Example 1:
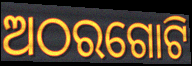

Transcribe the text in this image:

ଅଠରଗୋଟି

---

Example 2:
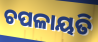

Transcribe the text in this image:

ଚପଳାୟତି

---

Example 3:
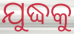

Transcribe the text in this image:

ଯୁଦ୍ଧକୁ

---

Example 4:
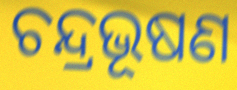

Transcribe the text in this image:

ଚନ୍ଦ୍ରଭୂଷଣ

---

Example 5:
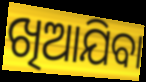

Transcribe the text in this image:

ଖିଆଯିବା